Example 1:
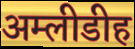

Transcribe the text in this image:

अम्लीडीह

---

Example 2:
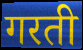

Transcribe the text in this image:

गरती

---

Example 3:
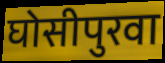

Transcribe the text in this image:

घोसीपुरवा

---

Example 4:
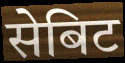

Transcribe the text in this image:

सेबिट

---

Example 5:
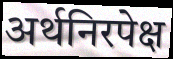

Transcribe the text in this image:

अर्थनिरपेक्ष